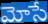
మోసే